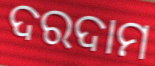
ଦରଦାମ